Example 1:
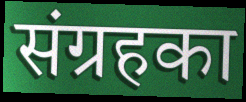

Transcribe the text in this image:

संग्रहका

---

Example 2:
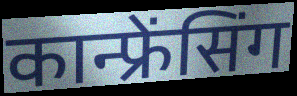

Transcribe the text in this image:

कान्फ्रेंसिंग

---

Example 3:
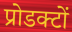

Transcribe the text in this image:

प्रोडक्टों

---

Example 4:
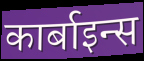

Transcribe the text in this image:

कार्बाइन्स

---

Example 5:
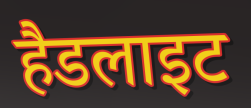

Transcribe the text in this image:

हैडलाइट